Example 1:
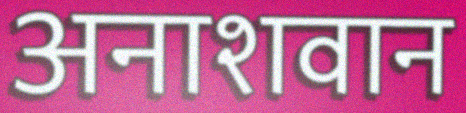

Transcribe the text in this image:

अनाशवान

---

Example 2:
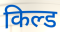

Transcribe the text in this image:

किल्ड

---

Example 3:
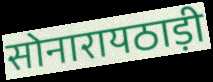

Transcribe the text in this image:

सोनारायठाड़ी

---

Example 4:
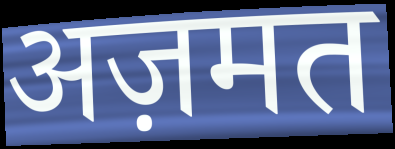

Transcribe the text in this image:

अज़मत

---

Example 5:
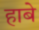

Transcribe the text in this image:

हाबे